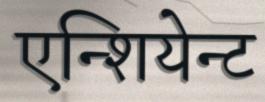
एन्शियेन्ट